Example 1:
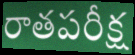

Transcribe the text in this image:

రాతపరీక్ష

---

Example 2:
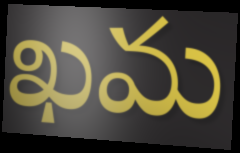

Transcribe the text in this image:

ఖమ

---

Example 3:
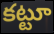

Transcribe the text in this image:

కట్టూ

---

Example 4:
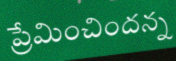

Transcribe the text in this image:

ప్రేమించిందన్న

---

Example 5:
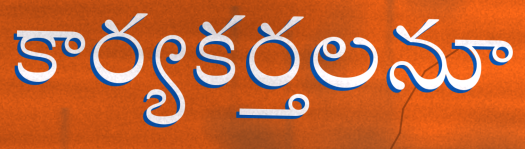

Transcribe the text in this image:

కార్యకర్తలనూ